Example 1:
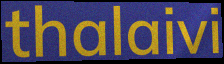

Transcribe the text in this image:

thalaivi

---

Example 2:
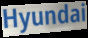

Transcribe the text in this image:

Hyundai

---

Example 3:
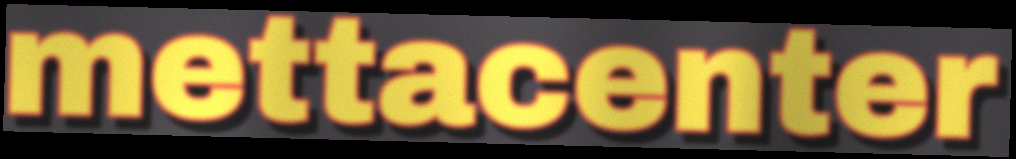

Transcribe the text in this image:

mettacenter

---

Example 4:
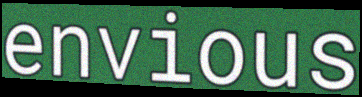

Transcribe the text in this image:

envious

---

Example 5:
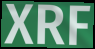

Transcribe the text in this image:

XRF